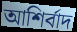
আশির্বাদ